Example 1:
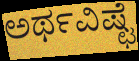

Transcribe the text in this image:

ಅರ್ಥವಿಷ್ಟೆ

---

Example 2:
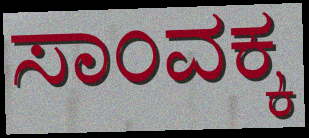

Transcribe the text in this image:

ಸಾಂವಕ್ಕ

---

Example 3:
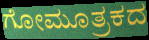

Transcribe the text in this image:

ಗೋಮೂತ್ರಕದ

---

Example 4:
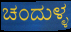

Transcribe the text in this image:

ಚಂದುಳ್ಳ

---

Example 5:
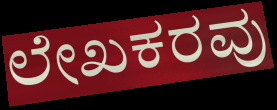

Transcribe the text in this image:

ಲೇಖಕರವು